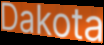
Dakota